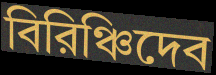
বিরিঞ্চিদেব